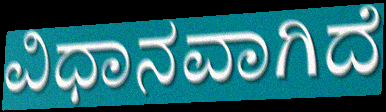
ವಿಧಾನವಾಗಿದೆ